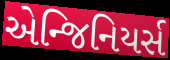
એન્જિનિયર્સ